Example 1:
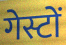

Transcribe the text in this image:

गेस्टों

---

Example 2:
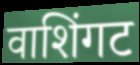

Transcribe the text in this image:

वाशिंगट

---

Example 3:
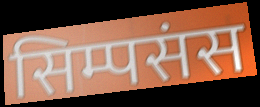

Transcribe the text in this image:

सिम्पसंस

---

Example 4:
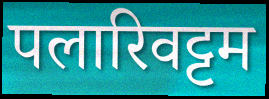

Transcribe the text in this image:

पलारिवट्टम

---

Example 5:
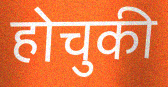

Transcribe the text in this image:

होचुकी